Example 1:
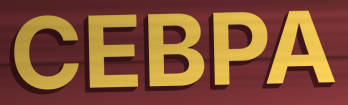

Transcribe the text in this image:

CEBPA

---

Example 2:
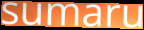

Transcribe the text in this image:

sumaru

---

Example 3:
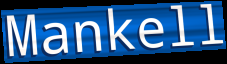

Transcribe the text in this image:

Mankell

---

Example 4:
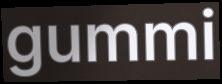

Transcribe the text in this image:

gummi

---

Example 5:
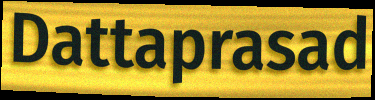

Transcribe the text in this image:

Dattaprasad